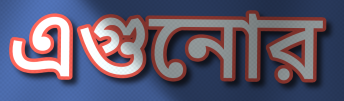
এগুনোর